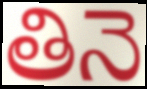
తినె